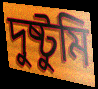
দুষ্টুমি